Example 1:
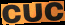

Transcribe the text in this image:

CUC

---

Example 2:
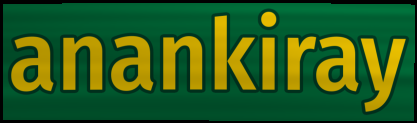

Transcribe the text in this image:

anankiray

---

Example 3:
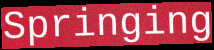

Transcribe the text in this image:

Springing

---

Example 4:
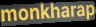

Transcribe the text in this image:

monkharap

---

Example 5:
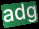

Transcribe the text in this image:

adg